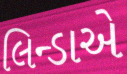
લિન્ડાએ